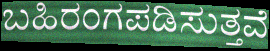
ಬಹಿರಂಗಪಡಿಸುತ್ತವೆ